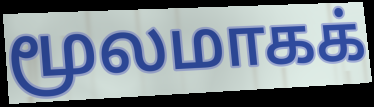
மூலமாகக்